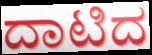
ದಾಟಿದ